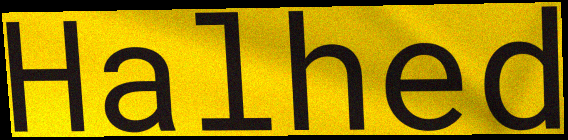
Halhed